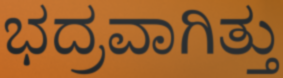
ಭದ್ರವಾಗಿತ್ತು